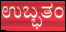
ಉಬ್ಭತಂ